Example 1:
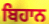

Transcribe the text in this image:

ਬਿਹਾਨ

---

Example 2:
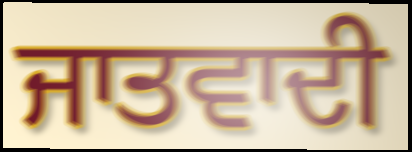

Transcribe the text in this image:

ਜਾਤਵਾਦੀ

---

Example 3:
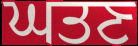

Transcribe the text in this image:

ਘਤਣ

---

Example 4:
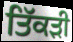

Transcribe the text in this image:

ਤਿੱਕੜੀ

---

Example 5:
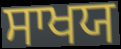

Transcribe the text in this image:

ਸਾਖਯ